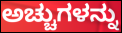
ಅಚ್ಚುಗಳನ್ನು